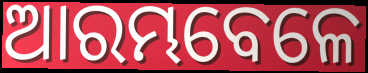
ଆରମ୍ଭବେଳେ